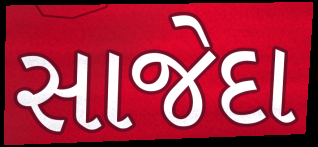
સાજેદા